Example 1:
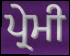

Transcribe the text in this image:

ਪ੍ਰੇਮੀ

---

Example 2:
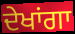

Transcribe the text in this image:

ਦੇਖਾਂਗਾ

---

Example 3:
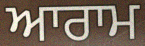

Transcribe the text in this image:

ਆਰਾਮ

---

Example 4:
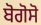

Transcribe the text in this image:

ਬੋਗੋਸੋ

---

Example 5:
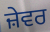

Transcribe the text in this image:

ਜ਼ੇਵਰ